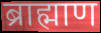
ब्राह्माण